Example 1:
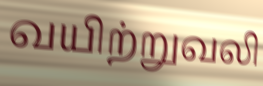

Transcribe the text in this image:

வயிற்றுவலி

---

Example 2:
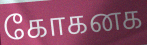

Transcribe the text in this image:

கோகனக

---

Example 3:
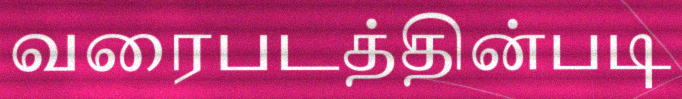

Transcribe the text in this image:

வரைபடத்தின்படி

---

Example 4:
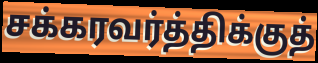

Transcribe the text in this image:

சக்கரவர்த்திக்குத்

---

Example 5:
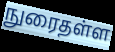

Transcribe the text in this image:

நுரைதள்ள